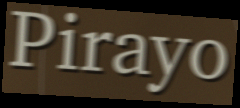
Pirayo